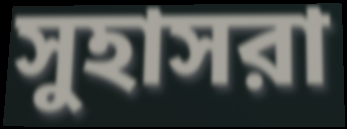
সুহাসরা